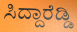
ಸಿದ್ದಾರೆಡ್ಡಿ